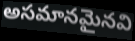
అసమానమైనవి